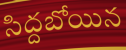
సిద్దబోయిన